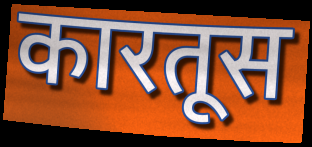
कारतूस